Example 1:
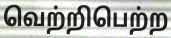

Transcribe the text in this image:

வெற்றிபெற்ற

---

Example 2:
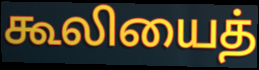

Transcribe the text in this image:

கூலியைத்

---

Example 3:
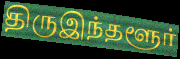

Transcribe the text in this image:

திருஇந்தளூர்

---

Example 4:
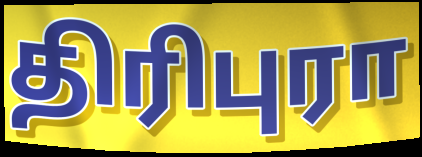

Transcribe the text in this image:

திரிபுரா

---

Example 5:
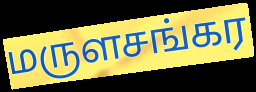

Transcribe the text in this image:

மருளசங்கர